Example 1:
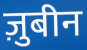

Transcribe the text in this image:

ज़ुबीन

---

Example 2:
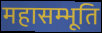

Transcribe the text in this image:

महासम्भूति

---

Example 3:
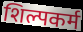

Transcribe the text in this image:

शिल्पकर्म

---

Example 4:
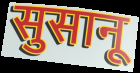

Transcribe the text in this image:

सुसानू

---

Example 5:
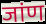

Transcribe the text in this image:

जांण